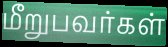
மீறுபவர்கள்